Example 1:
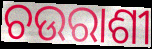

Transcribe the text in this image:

ଚଉରାଶୀ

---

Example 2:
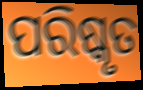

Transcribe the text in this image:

ପରିଷ୍କୃତ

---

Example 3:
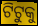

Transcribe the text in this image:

ଟିଟୁକୁ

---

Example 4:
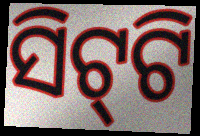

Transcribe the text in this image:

ସିଟ୍‌ଟି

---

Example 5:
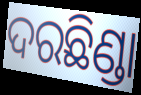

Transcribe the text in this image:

ଦରଛିଣ୍ଡା